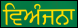
ਵਿਅੰਜਨਾ